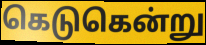
கெடுகென்று